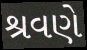
શ્રવણે